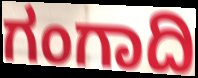
ಗಂಗಾದಿ